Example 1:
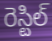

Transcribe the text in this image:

రెస్టిల్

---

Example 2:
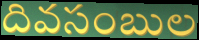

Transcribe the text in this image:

దివసంబుల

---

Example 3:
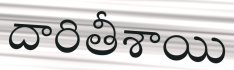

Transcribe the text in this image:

దారితీశాయి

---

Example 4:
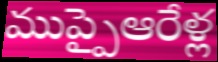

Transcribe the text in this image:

ముప్పైఆరేళ్ల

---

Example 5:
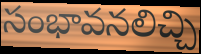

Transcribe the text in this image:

సంభావనలిచ్చి